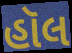
હૉલ